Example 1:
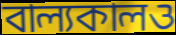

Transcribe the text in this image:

বাল্যকালও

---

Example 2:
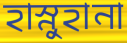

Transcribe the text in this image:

হাস্নুহানা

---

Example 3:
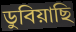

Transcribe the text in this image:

ডুবিয়াছি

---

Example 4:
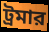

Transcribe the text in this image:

ট্রমার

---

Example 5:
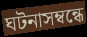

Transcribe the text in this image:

ঘটনাসম্বন্ধে